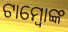
ଟାମ୍ବୋଙ୍କ